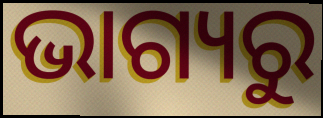
ଭାଗ୍ୟରୁ